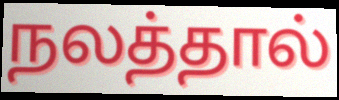
நலத்தால்